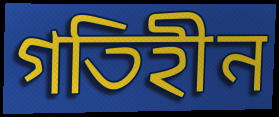
গতিহীন